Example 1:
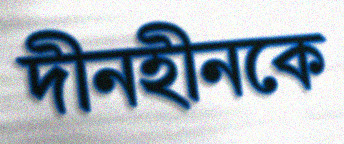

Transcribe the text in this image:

দীনহীনকে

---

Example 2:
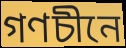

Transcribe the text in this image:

গণচীনে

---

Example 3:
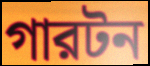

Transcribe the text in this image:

গারটন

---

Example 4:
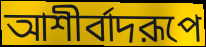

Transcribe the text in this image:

আশীর্বাদরূপে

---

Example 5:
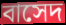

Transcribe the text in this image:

বাসেদ